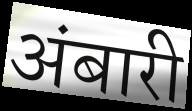
अंबारी